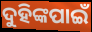
ଦୁହିଙ୍କପାଇଁ